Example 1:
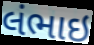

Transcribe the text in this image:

લંભાઇ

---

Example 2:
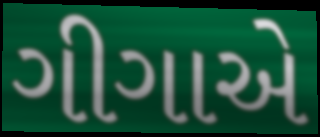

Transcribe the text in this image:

ગીગાએ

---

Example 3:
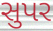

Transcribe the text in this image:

સુપર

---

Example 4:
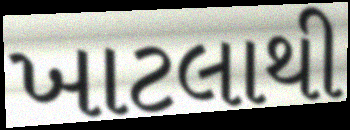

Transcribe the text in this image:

ખાટલાથી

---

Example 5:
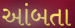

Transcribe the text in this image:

આંબતા